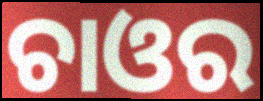
ଚାଓର